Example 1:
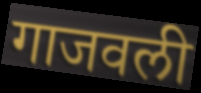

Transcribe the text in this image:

गाजवली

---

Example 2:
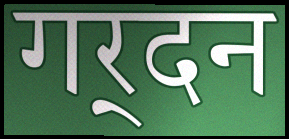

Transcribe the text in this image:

गर्दन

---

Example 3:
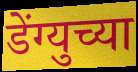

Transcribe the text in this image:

डेंग्युच्या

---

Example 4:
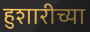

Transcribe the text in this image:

हुशारीच्या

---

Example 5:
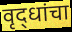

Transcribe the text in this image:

वृद्धांचा